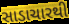
સાડાચારથી